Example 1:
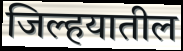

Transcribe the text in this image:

जिल्हयातील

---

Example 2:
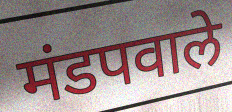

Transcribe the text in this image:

मंडपवाले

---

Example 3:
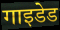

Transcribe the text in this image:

गाइडेड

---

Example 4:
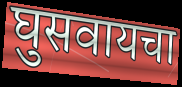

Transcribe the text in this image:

घुसवायचा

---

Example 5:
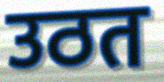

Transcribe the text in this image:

उठत